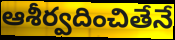
ఆశీర్వదించితేనే